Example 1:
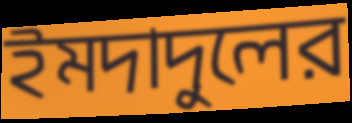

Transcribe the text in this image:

ইমদাদুলের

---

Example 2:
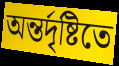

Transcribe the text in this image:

অন্তর্দৃষ্টিতে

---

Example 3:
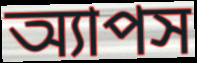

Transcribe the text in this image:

অ্যাপস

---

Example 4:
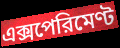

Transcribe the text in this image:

এক্সপেরিমেণ্ট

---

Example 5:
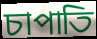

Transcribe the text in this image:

চাপাতি